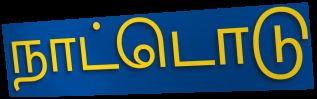
நாட்டொடு